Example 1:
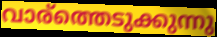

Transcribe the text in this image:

വാര്ത്തെടുക്കുന്നു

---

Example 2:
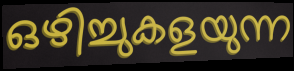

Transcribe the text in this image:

ഒഴിച്ചുകളയുന്ന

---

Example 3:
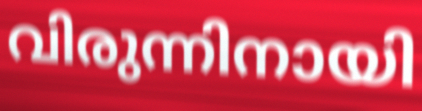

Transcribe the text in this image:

വിരുന്നിനായി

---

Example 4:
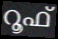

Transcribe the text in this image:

റൂഫ്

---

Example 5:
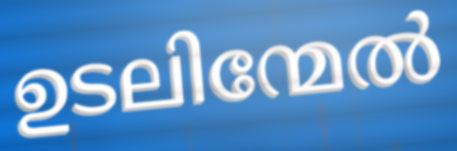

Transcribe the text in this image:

ഉടലിന്മേൽ